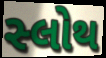
સ્લોથ